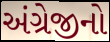
અંગ્રેજીનો